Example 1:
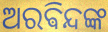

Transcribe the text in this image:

ଅରଵିନ୍ଦଙ୍କ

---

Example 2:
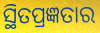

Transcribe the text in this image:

ସ୍ଥିତପ୍ରଜ୍ଞତାର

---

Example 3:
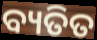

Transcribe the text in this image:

ବ୍ୟତିତ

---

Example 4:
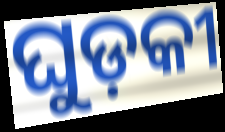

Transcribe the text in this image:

ଘୁଡ଼କୀ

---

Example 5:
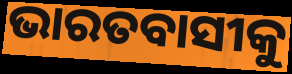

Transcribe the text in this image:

ଭାରତବାସୀକୁ